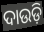
ଦାଉଡ଼ି